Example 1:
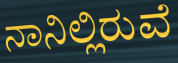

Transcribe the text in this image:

ನಾನಿಲ್ಲಿರುವೆ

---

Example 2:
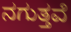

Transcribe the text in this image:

ನಗುತ್ತವೆ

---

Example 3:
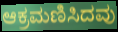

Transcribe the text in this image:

ಆಕ್ರಮಣಿಸಿದವು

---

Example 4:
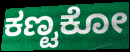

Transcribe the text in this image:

ಕಣ್ಟಕೋ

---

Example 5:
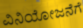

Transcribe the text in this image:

ವಿನಿಯೋಜನೆಗೆ